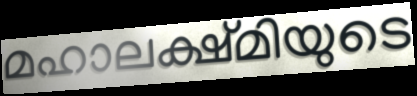
മഹാലക്ഷ്മിയുടെ